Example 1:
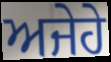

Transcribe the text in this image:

ਅਜੇਹੇ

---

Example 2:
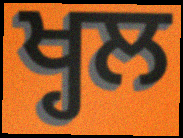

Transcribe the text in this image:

ਖ੍ਹਲ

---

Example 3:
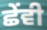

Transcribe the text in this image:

ਛੇੰਵੀ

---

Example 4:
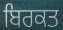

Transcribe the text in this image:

ਬਿਰਕਤ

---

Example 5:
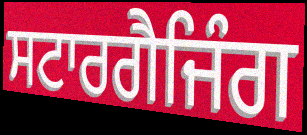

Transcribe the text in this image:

ਸਟਾਰਗੈਜਿੰਗ